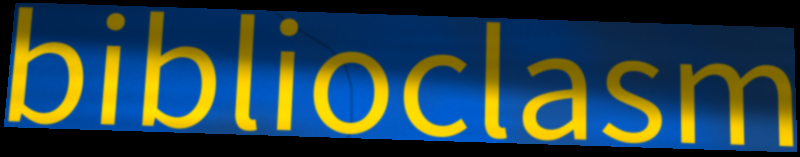
biblioclasm